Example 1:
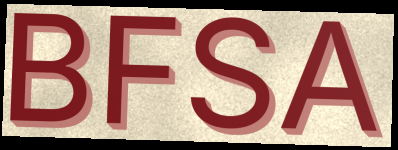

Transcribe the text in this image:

BFSA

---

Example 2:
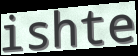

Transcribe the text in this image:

ishte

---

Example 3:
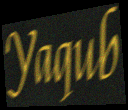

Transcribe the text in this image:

Yaqub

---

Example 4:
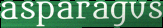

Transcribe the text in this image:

asparagus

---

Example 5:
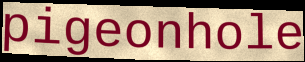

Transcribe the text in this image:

pigeonhole